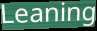
Leaning